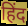
हिंद